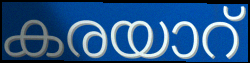
കരയാറ്